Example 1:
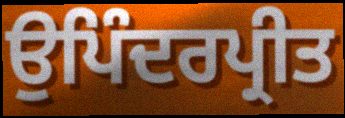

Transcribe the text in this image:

ਉਪਿੰਦਰਪ੍ਰੀਤ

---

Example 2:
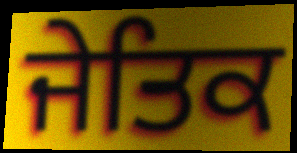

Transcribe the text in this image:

ਜੇਤਿਕ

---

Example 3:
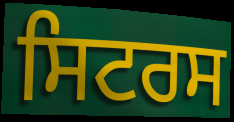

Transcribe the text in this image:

ਸਿਟਰਸ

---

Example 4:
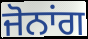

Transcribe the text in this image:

ਜੋਨਾਂਗ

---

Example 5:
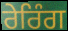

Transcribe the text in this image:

ਰੇਰਿੰਗ